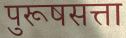
पुरूषसत्ता